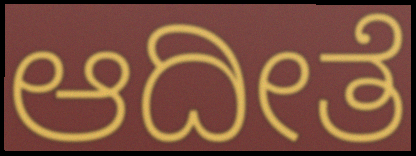
ಆದೀತೆ